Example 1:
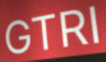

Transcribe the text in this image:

GTRI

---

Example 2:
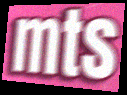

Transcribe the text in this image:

mts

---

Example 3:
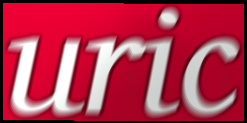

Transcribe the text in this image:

uric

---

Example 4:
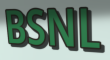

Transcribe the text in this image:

BSNL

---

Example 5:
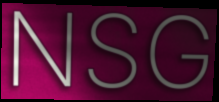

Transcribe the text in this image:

NSG